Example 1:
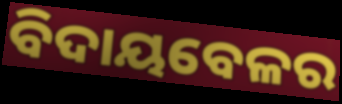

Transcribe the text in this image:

ବିଦାୟବେଳର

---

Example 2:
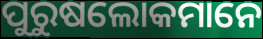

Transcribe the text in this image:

ପୁରୁଷଲୋକମାନେ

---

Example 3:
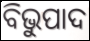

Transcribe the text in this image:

ବିଭୁପାଦ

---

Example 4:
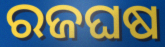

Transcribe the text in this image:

ରଜଘଷ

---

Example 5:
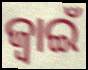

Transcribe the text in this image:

ଜ୍ଵାଇଁ